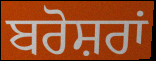
ਬਰੋਸ਼ਰਾਂ